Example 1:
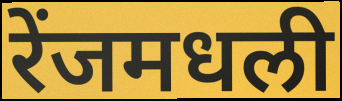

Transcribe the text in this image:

रेंजमधली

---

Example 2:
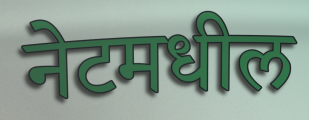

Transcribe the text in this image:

नेटमधील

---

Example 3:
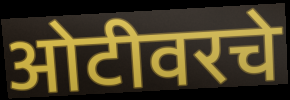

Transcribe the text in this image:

ओटीवरचे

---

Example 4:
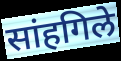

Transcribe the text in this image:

सांहगिले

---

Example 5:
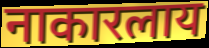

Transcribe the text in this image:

नाकारलाय